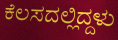
ಕೆಲಸದಲ್ಲಿದ್ದಳು